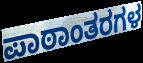
ಪಾಠಾಂತರಗಳ